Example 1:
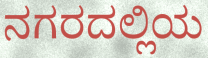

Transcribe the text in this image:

ನಗರದಲ್ಲಿಯ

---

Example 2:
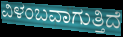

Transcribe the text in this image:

ವಿಳಂಬವಾಗುತ್ತಿದೆ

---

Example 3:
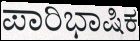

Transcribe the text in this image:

ಪಾರಿಭಾಷಿಕ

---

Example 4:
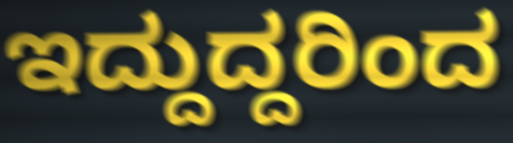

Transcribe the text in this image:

ಇದ್ದುದ್ದರಿಂದ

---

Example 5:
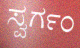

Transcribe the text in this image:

ಸ್ವರ್ಗಂ